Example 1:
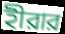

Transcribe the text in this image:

হীরার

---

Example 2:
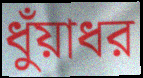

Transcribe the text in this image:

ধুঁয়াধর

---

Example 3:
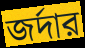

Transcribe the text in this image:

জর্দার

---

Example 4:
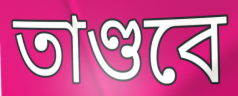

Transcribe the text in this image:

তাণ্ডবে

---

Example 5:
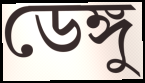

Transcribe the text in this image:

ডেঙ্গু